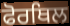
ਫੋਰਥਿਲ